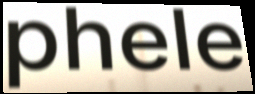
phele